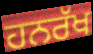
ਹਨਰੱਖ